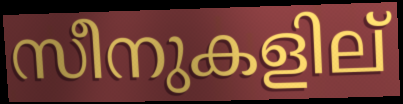
സീനുകളില്